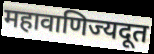
महावाणिज्यदूत